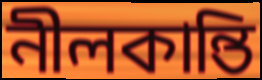
নীলকান্তি